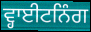
ਵ੍ਹਾਈਟਨਿੰਗ